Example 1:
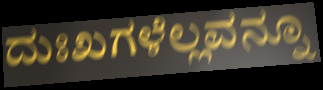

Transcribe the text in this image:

ದುಃಖಗಳೆಲ್ಲವನ್ನೂ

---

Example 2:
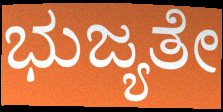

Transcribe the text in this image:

ಭುಜ್ಯತೇ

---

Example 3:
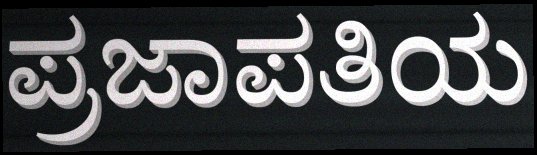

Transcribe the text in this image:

ಪ್ರಜಾಪತಿಯ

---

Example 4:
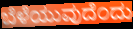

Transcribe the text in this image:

ಬೆಳೆಯುವುದೆಂದು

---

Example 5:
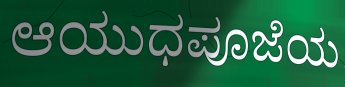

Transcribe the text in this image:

ಆಯುಧಪೂಜೆಯ